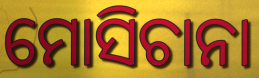
ମୋସିଚାନା